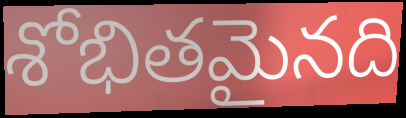
శోభితమైనది